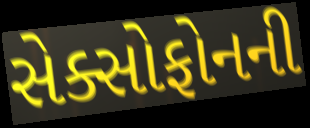
સેક્સોફોનની